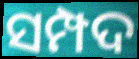
ସମ୍ପଦ